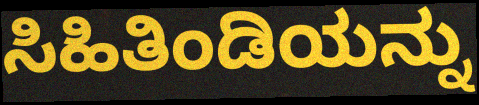
ಸಿಹಿತಿಂಡಿಯನ್ನು